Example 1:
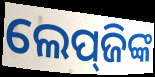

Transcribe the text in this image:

ଲେପ୍‌ଜିଙ୍କ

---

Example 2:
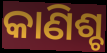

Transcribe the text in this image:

କାଣିଶ୍ଚ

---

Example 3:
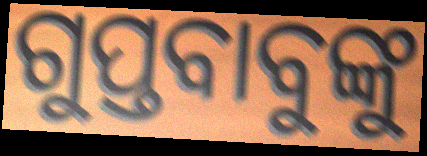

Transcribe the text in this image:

ଗୁପ୍ତବାବୁଙ୍କୁ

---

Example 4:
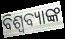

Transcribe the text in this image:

ବିଶ୍ୱବ୍ୟାଙ୍କ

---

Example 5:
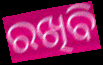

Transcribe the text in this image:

ରଖିବି